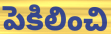
పెకిలించి